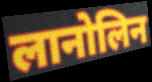
लानोलिन